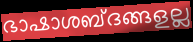
ഭാഷാശബ്ദങ്ങളല്ല